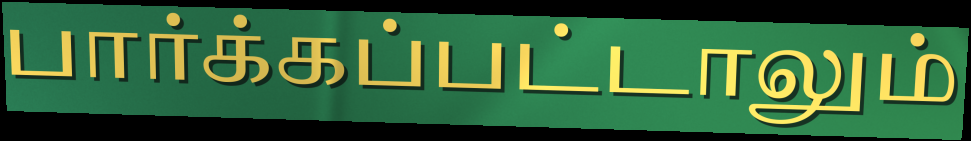
பார்க்கப்பட்டாலும்